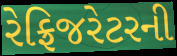
રેફ્રિજરેટરની